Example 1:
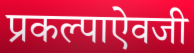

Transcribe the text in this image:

प्रकल्पाऐवजी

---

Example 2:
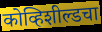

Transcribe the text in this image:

कोव्हिशील्डचा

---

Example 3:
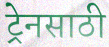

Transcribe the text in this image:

ट्रेनसाठी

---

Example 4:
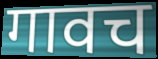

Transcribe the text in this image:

गावच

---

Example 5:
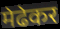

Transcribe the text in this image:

मेढेकर